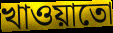
খাওয়াতো